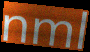
nml